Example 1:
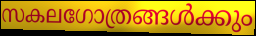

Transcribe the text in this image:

സകലഗോത്രങ്ങൾക്കും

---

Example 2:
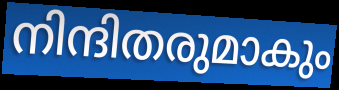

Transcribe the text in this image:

നിന്ദിതരുമാകും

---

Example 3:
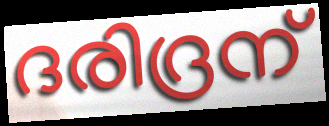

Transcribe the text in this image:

ദരിദ്രന്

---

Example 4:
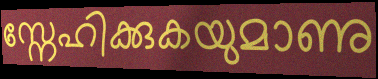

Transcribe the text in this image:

സ്നേഹിക്കുകയുമാണു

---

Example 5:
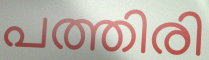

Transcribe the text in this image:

പത്തിരി